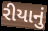
રીયાનું